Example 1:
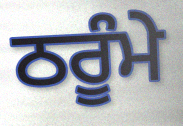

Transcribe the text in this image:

ਠਰੂੰਮੇ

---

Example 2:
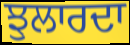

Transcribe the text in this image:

ਝੁਲਾਰਦਾ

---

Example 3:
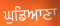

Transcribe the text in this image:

ਘੁਡਿਆਣਾ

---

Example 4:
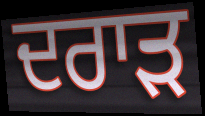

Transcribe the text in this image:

ਦਰਾੜ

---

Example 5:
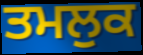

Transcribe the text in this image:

ਤਮਲੁਕ